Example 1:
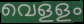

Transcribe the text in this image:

വെളളം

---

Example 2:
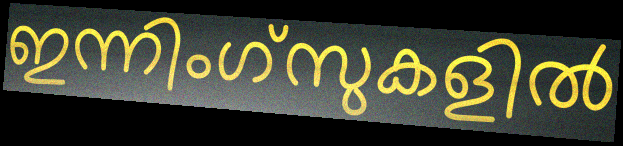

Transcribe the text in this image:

ഇന്നിംഗ്സുകളിൽ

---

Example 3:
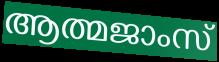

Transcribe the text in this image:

ആത്മജാംസ്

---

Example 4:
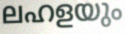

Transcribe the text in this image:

ലഹളയും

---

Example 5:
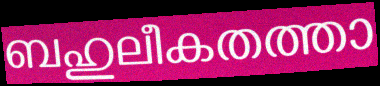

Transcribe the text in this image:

ബഹുലീകതത്താ